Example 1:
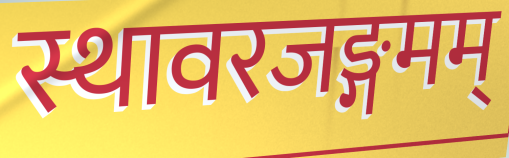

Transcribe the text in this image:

स्थावरजङ्गमम्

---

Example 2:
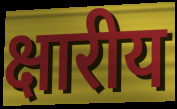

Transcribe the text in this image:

क्षारीय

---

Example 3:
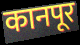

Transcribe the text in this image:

कानपूर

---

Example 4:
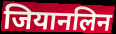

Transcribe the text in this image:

जियानलिन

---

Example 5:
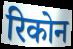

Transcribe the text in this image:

रिकोन